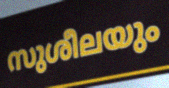
സുശീലയും